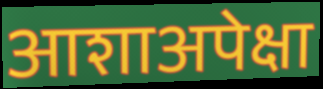
आशाअपेक्षा